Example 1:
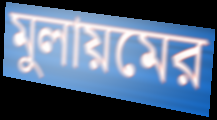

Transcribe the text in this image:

মুলায়মের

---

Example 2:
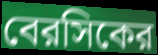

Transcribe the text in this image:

বেরসিকের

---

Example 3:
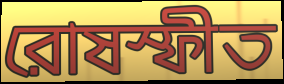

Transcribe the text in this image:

রোষস্ফীত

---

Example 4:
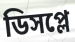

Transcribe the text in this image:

ডিসপ্লে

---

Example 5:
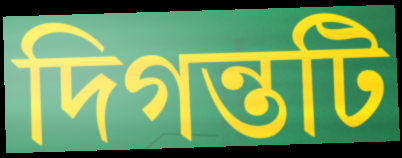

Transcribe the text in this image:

দিগন্তটি